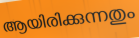
ആയിരിക്കുന്നതും